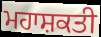
ਮਹਾਸ਼ਕਤੀ